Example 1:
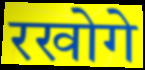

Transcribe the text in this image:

रखोगे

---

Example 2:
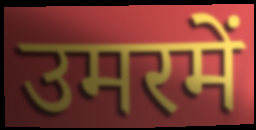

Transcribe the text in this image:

उमरमें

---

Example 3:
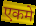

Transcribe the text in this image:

एकमे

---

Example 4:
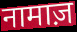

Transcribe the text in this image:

नामाज़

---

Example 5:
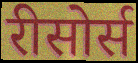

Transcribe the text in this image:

रीसोर्स